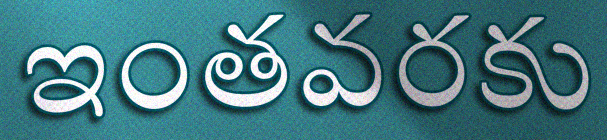
ఇంతవరకు